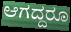
ಆಗದ್ದರೂ